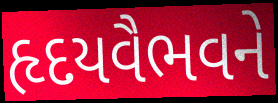
હૃદયવૈભવને